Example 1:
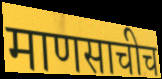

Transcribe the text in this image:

माणसाचीच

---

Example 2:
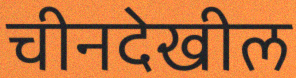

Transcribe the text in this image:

चीनदेखील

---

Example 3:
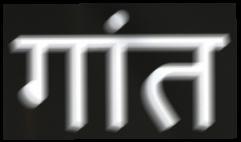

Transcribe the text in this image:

गांत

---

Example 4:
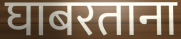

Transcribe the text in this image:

घाबरताना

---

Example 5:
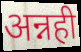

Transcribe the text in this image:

अन्नही